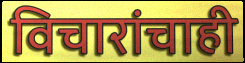
विचारांचाही